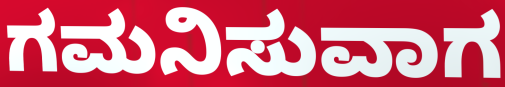
ಗಮನಿಸುವಾಗ